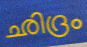
ഛിദ്രം